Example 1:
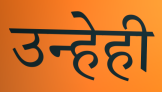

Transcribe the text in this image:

उन्हेही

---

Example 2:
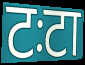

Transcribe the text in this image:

टःटा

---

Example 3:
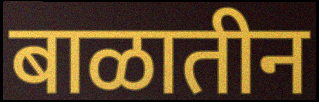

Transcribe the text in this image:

बाळातीन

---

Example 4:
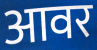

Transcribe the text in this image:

आवर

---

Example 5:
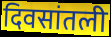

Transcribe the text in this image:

दिवसांतली